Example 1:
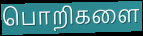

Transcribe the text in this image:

பொறிகளை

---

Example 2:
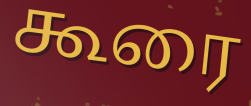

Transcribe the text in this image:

கூரை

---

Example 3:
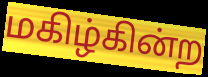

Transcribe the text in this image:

மகிழ்கின்ற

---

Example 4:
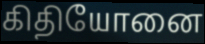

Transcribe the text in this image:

கிதியோனை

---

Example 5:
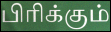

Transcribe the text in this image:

பிரிக்கும்